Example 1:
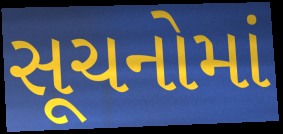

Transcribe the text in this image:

સૂચનોમાં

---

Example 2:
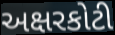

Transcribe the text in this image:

અક્ષરકોટી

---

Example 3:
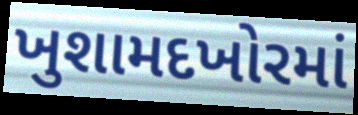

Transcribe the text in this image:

ખુશામદખોરમાં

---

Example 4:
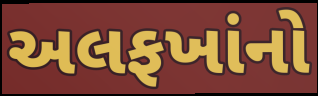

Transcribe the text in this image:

અલફખાંનો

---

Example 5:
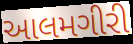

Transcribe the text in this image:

આલમગીરી